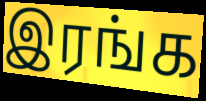
இரங்க